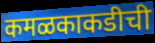
कमळकाकडीची